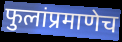
फुलांप्रमाणेच